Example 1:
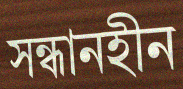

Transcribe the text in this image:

সন্ধানহীন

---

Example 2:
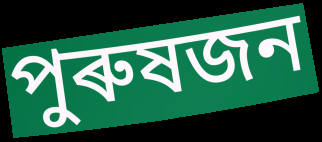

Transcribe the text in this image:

পুৰুষজন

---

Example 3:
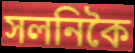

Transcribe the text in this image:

সলনিকৈ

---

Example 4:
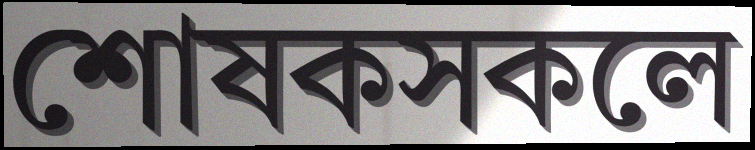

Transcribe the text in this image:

শোষকসকলে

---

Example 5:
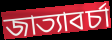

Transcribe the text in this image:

জাত্যাবৰ্চা